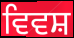
ਵਿਵਸ਼